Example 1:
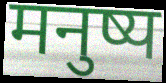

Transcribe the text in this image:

मनुष्य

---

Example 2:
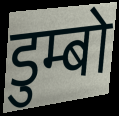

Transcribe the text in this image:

डुम्बो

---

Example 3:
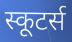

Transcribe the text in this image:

स्कूटर्स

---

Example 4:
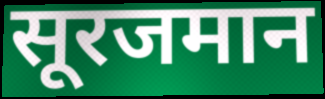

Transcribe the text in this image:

सूरजमान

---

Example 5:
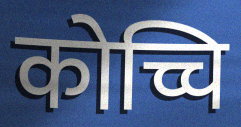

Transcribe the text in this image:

कोच्चि